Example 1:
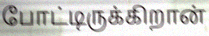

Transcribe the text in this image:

போட்டிருக்கிறான்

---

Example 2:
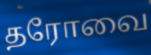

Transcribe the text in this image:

தரோவை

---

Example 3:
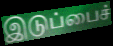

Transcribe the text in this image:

இடுப்பைச்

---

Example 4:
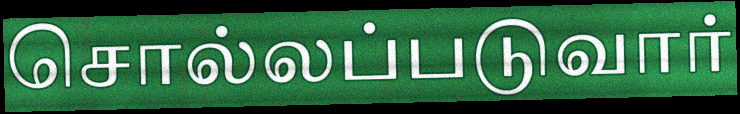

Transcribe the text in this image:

சொல்லப்படுவார்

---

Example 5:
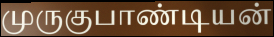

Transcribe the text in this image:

முருகுபாண்டியன்